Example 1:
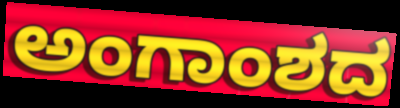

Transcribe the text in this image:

ಅಂಗಾಂಶದ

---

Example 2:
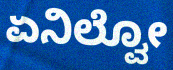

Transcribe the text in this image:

ಏನಿಲ್ವೋ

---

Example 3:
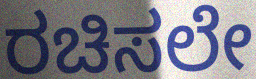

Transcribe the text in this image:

ರಚಿಸಲೇ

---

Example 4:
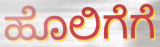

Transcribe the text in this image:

ಹೊಲಿಗೆಗೆ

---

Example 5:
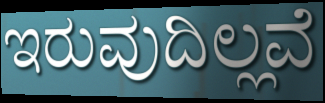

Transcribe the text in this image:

ಇರುವುದಿಲ್ಲವೆ